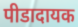
पीडादायक